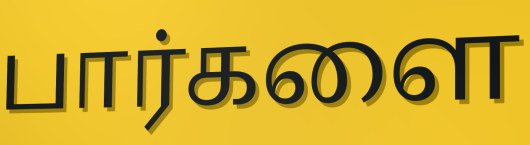
பார்களை